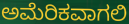
ಅಮೆರಿಕವಾಗಲಿ